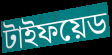
টাইফয়েড